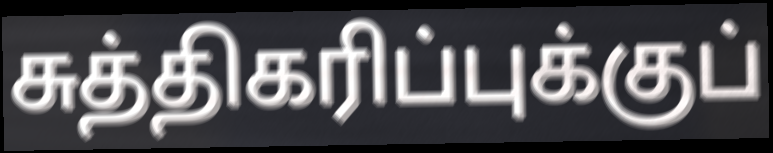
சுத்திகரிப்புக்குப்